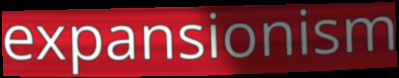
expansionism